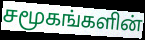
சமூகங்களின்